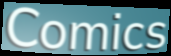
Comics